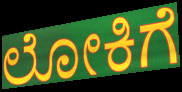
ಲೋಕಿಗೆ